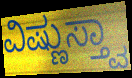
ವಿಷ್ಣುಸ್ತ್ವಾ